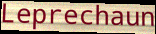
Leprechaun